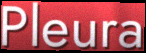
Pleura